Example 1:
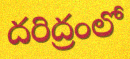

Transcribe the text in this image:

దరిద్రంలో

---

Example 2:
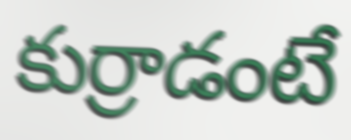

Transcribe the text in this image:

కుర్రాడంటే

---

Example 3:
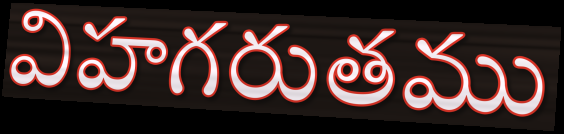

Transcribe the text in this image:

విహగరుతము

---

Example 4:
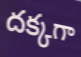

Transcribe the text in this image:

దక్కగా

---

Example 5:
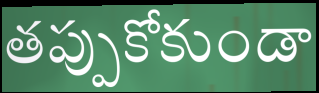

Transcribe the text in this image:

తప్పుకోకుండా